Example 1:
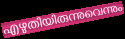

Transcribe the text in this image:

എഴുതിയിരുന്നുവെന്നും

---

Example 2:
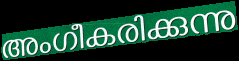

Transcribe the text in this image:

അംഗീകരിക്കുന്നു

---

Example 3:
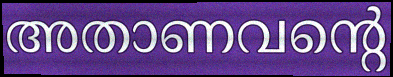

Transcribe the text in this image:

അതാണവന്റെ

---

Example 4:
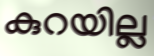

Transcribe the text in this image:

കുറയില്ല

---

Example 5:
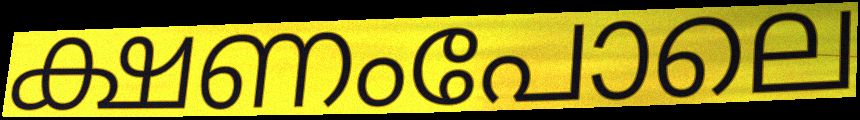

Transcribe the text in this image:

ക്ഷണംപോലെ